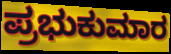
ಪ್ರಭುಕುಮಾರ